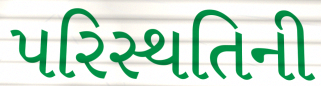
પરિસ્થતિની